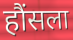
हौंसला